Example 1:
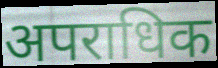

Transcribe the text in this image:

अपराधिक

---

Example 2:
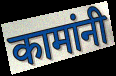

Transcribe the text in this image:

कामांनी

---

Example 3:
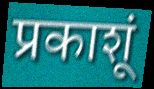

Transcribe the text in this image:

प्रकाशूं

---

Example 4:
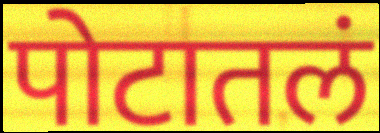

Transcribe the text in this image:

पोटातलं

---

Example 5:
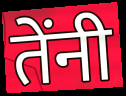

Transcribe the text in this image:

तेंनी